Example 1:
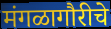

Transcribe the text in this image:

मंगळागौरीचे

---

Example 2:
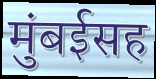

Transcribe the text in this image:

मुंबईसह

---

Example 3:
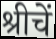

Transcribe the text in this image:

श्रीचें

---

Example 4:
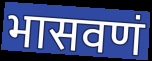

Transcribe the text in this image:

भासवणं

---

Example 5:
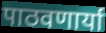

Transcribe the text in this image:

पाठवणार्या